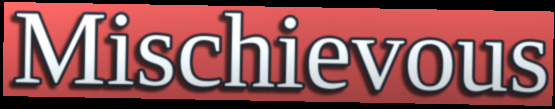
Mischievous